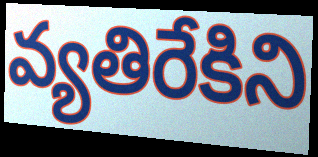
వ్యతిరేకిని